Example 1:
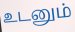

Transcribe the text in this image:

உடனும்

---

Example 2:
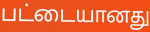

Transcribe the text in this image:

பட்டையானது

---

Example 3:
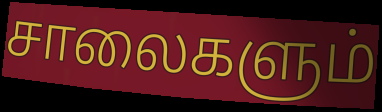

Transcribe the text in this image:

சாலைகளும்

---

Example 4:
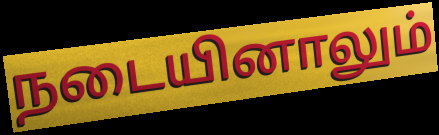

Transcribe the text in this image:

நடையினாலும்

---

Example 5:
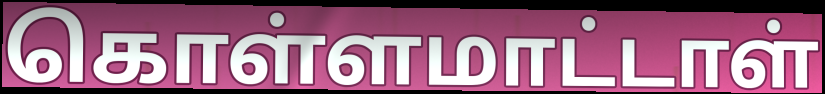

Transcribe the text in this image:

கொள்ளமாட்டாள்